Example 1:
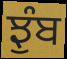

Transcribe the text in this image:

ਝੁੰਬ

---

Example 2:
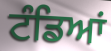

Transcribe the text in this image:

ਟੰਡਿਆਂ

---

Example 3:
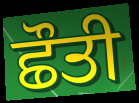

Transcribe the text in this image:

ਛੌਤੀ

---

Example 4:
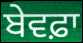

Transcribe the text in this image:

ਬੇਵਫ਼ਾ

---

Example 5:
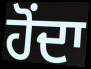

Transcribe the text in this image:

ਹੋਂਦਾ